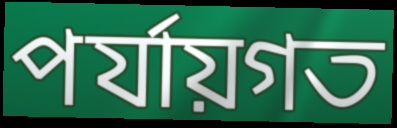
পর্যায়গত